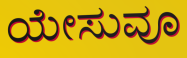
ಯೇಸುವೂ